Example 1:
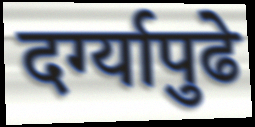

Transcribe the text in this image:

दर्ग्यापुढे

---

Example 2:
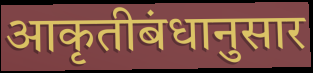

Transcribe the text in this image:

आकृतीबंधानुसार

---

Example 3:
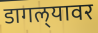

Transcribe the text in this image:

डागल्यावर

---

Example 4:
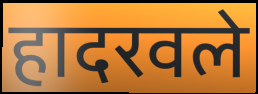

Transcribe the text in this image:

हादरवले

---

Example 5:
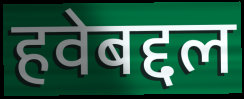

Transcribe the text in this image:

हवेबद्दल